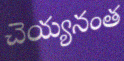
చెయ్యనంత